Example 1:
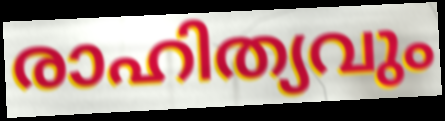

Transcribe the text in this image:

രാഹിത്യവും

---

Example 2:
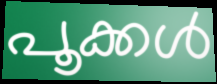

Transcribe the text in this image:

പൂക്കൾ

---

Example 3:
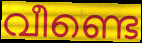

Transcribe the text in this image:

വീണ്ടെ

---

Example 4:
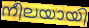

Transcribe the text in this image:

നീലയായി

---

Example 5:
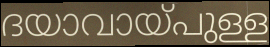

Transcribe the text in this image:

ദയാവായ്പുള്ള